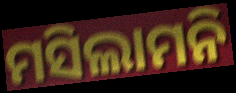
ମସିଲାମନି